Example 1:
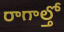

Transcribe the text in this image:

రాగాల్తో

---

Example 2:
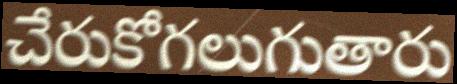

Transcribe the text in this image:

చేరుకోగలుగుతారు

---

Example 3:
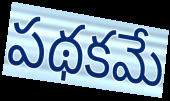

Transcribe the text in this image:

పథకమే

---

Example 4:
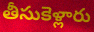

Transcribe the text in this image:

తీసుకెళ్లారు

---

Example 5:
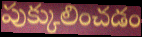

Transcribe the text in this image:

పుక్కులించడం